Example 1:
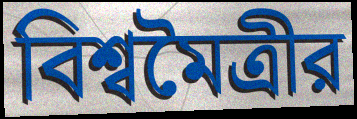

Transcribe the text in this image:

বিশ্বমৈত্রীর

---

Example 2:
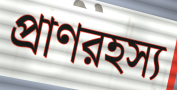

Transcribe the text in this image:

প্রাণরহস্য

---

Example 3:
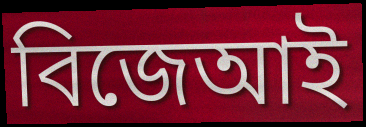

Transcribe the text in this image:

বিজেআই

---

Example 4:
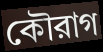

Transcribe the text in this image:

কৌরাগ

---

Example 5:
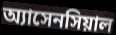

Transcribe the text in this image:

অ্যাসেনসিয়াল